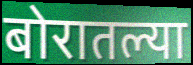
बोरातल्या